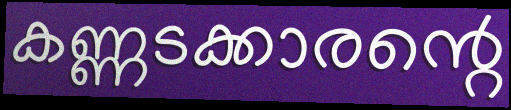
കണ്ണടക്കാരന്റെ